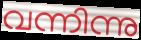
വന്നിന്നു